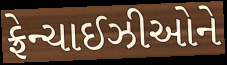
ફ્રેન્ચાઈઝીઓને